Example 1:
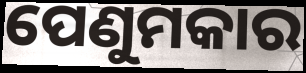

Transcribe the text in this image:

ପେଣୁମକାର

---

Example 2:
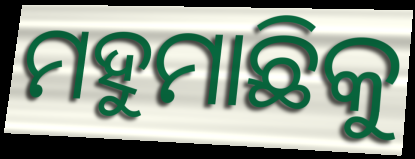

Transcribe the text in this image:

ମହୁମାଛିକୁ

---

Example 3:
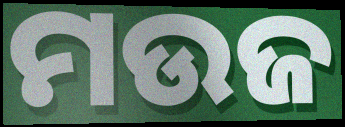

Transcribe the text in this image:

ମଉଜ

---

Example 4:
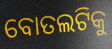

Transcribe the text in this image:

ବୋତଲଟିକୁ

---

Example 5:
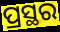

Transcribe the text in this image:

ପ୍ରସ୍ଥର